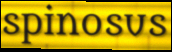
spinosus